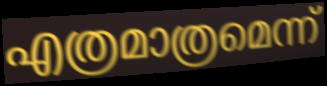
എത്രമാത്രമെന്ന്